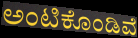
ಅಂಟಿಕೊಂಡಿವೆ